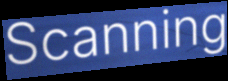
Scanning